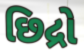
છિદ્રો